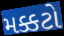
મક્કટો